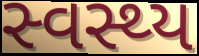
સ્વસ્થ્ય